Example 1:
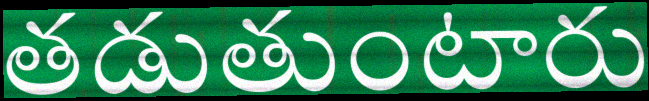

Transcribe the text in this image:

తడుతుంటారు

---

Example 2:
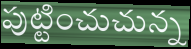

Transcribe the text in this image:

పుట్టించుచున్న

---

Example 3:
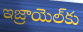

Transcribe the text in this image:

ఇజ్రాయెల్‌కు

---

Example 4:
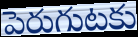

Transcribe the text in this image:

పెరుగుటకు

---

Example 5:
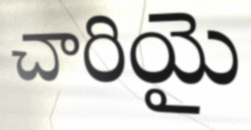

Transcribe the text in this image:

చారియై